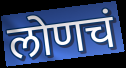
लोणचं